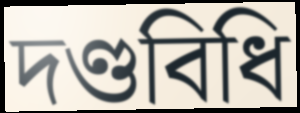
দণ্ডবিধি